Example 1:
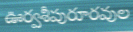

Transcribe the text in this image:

ఊర్వశీపురూరవుల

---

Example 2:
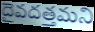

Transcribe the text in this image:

దైవదత్తమని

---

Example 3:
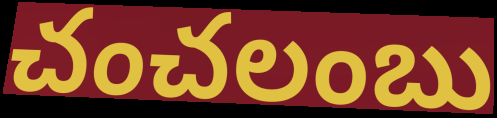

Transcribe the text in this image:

చంచలంబు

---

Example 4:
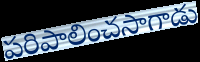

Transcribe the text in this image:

పరిపాలించసాగాడు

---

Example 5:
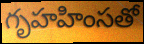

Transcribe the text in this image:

గృహహింసతో